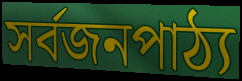
সর্বজনপাঠ্য